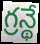
గ్రన్థే